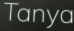
Tanya